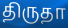
திருதா